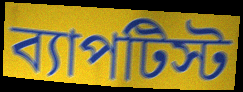
ব্যাপটিস্ট